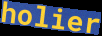
holier